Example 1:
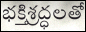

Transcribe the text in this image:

భక్తిశ్రద్ధలతో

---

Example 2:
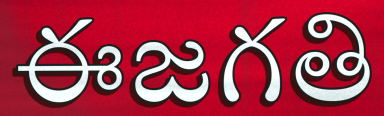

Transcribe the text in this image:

ఈజగతి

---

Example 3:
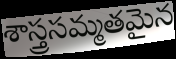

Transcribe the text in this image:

శాస్త్రసమ్మతమైన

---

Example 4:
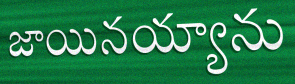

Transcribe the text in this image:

జాయినయ్యాను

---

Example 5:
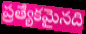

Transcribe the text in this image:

ప్రత్యేకమైనది